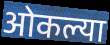
ओकल्या